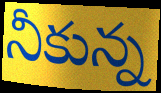
నీకున్న